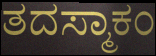
ತದಸ್ಮಾಕಂ